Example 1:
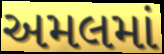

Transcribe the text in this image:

અમલમાં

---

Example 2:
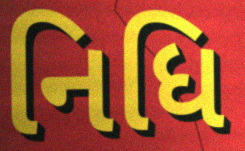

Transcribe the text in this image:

નિધિ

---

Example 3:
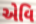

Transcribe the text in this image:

એવિ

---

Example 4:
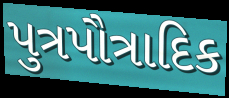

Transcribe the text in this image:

પુત્રપૌત્રાદિક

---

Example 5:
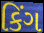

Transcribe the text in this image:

કિંગ